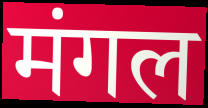
मंगल